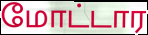
மோட்டார